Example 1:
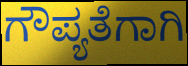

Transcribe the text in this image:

ಗೌಪ್ಯತೆಗಾಗಿ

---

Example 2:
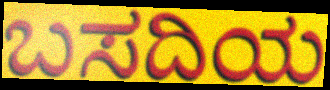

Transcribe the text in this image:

ಬಸದಿಯ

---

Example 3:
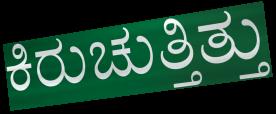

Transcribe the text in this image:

ಕಿರುಚುತ್ತಿತ್ತು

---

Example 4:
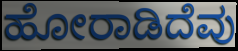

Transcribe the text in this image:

ಹೋರಾಡಿದೆವು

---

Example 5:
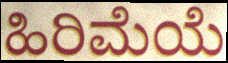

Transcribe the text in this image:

ಹಿರಿಮೆಯೆ